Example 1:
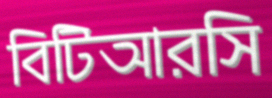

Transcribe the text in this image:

বিটিআরসি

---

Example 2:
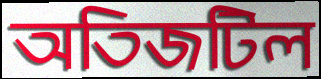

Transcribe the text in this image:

অতিজটিল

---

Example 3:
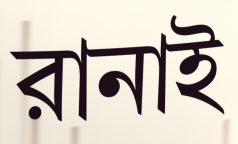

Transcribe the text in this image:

রানাই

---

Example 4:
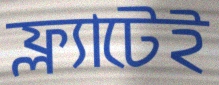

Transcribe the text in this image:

ফ্ল্যাটেই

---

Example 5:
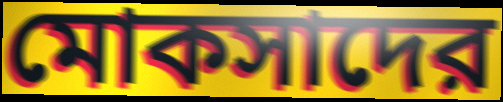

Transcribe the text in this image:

মোকসাদের